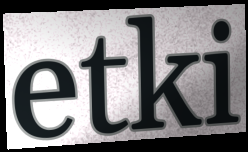
etki